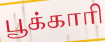
பூக்காரி